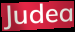
Judea